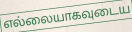
எல்லையாகவுடைய